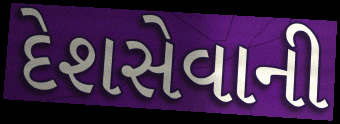
દેશસેવાની